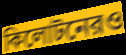
কিলোটনেরও